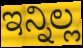
ಇನ್ನಿಲ್ಲ